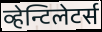
व्हेन्टिलेटर्स